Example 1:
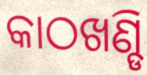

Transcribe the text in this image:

କାଠଖଣ୍ଡି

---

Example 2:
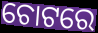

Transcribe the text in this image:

ଚୋଟରେ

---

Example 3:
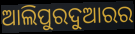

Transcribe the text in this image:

ଆଲିପୁରଦୁଆରର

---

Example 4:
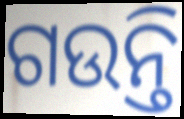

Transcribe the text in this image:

ଗଉନ୍ତି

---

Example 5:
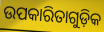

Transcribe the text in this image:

ଉପକାରିତାଗୁଡ଼ିକ